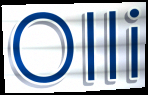
Olli